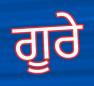
ਗੂਰੇ